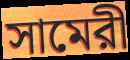
সামেরী